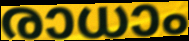
രാധാം